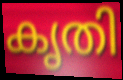
കൃതി